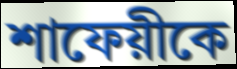
শাফেয়ীকে